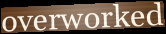
overworked